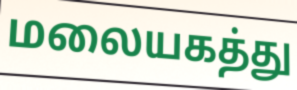
மலையகத்து